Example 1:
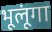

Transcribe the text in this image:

भूलूंगा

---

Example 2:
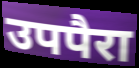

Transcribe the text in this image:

उपपैरा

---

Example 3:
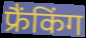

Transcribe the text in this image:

फ्रैंकिंग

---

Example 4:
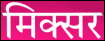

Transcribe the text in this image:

मिक्सर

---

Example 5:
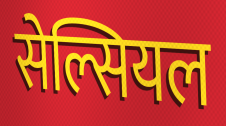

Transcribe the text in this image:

सेल्सियल